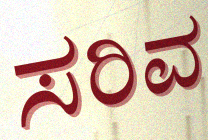
ಸರಿವ